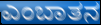
ಎಂಬಾತನ